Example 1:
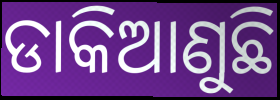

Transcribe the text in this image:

ଡାକିଆଣୁଛି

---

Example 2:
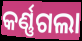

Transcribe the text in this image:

କର୍ଣ୍ଣଗଲା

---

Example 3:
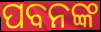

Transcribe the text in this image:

ପବନଙ୍କ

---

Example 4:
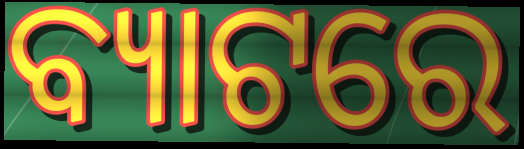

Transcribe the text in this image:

ବ୍ୟାଟରେ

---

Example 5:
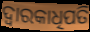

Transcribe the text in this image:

ଦ୍ୱାରକାଧିପତି